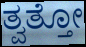
ತ್ವತ್ತೋ